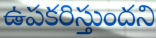
ఉపకరిస్తుందని